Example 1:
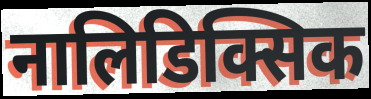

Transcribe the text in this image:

नालिडिक्सिक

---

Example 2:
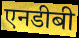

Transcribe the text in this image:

एनडीबी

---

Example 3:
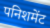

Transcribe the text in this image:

पनिशमेंट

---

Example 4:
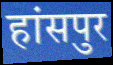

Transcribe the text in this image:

हांसपुर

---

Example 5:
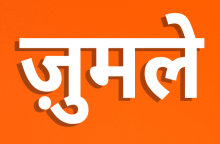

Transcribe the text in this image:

ज़ुमले